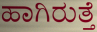
ಹಾಗಿರುತ್ತೆ